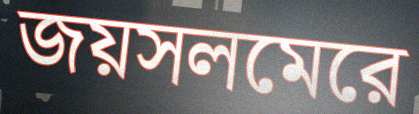
জয়সলমেরে